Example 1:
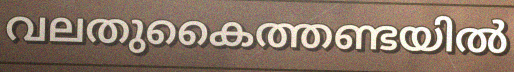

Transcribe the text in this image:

വലതുകൈത്തണ്ടയിൽ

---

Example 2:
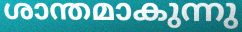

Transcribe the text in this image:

ശാന്തമാകുന്നു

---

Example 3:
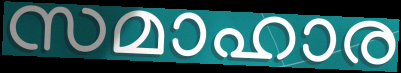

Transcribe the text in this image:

സമാഹാര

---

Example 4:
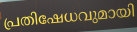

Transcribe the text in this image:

പ്രതിഷേധവുമായി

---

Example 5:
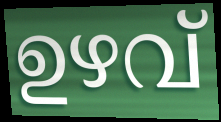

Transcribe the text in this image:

ഉഴവ്